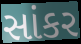
સાંકર